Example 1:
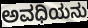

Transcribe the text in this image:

ಅವಧಿಯನು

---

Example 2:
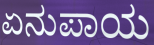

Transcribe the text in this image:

ಏನುಪಾಯ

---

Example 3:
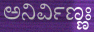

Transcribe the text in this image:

ಅನಿರ್ವಿಣ್ಣಃ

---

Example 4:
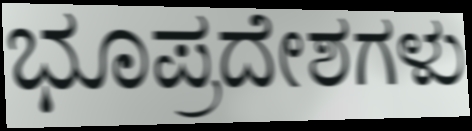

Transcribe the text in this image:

ಭೂಪ್ರದೇಶಗಳು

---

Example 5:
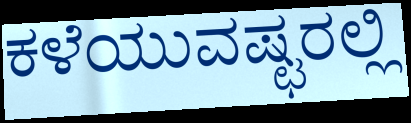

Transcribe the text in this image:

ಕಳೆಯುವಷ್ಟರಲ್ಲಿ